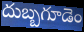
దుబ్బగూడెం